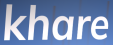
khare